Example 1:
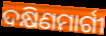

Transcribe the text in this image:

ଦକ୍ଷିଣମାର୍ଗୀ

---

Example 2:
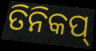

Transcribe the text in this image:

ତିନିକପ୍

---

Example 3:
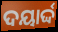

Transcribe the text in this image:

ଦୟାର୍ଦ୍ଦ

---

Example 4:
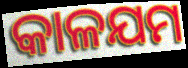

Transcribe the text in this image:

କାଳଯମ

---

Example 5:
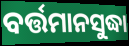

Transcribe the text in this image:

ବର୍ତ୍ତମାନସୁଦ୍ଧା